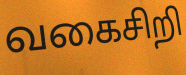
வகைசிறி